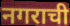
नगराची